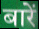
बारें